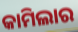
କାମିଲାର